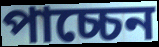
পাচ্চেন